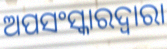
ଅପସଂସ୍କାରଦ୍ୱାରା